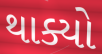
થાક્યો